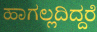
ಹಾಗಲ್ಲದಿದ್ದರೆ